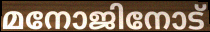
മനോജിനോട്